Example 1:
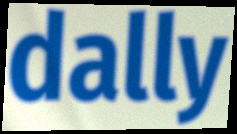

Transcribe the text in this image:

dally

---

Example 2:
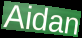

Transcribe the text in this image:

Aidan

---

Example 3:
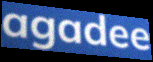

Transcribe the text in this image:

agadee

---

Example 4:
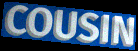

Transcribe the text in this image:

COUSIN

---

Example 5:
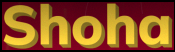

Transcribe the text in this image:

Shoha